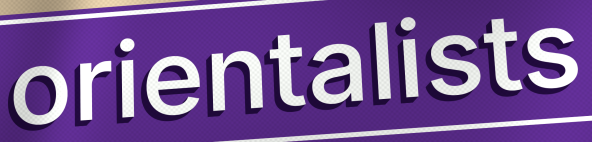
orientalists